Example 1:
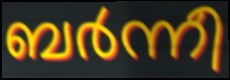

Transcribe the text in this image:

ബർന്നീ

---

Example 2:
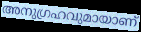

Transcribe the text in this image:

അനുഗ്രഹവുമായാണ്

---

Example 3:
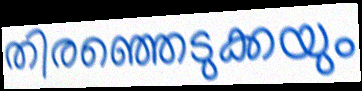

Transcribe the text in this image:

തിരഞ്ഞെടുക്കയും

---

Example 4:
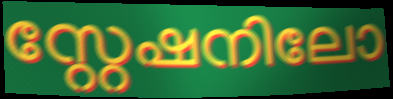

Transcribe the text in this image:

സ്റ്റേഷനിലോ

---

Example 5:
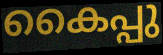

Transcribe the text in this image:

കൈപ്പു